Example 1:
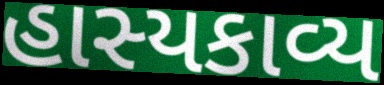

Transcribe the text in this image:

હાસ્યકાવ્ય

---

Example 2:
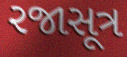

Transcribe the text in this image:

રજાસૂત્ર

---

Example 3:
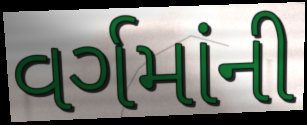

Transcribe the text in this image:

વર્ગમાંની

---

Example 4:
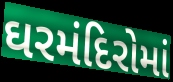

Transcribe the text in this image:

ઘરમંદિરોમાં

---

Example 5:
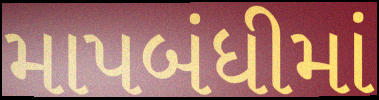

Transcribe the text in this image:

માપબંધીમાં